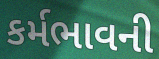
કર્મભાવની